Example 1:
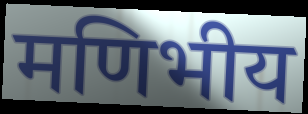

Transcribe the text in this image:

मणिभीय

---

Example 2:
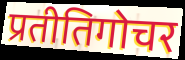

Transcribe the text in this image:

प्रतीतिगोचर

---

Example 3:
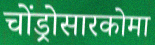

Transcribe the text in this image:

चोंड्रोसारकोमा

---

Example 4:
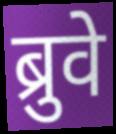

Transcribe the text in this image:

ब्रुवे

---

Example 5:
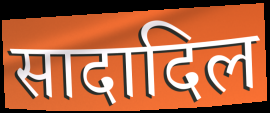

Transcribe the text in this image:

सादादिल